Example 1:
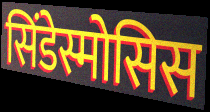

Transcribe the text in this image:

सिंडेस्मोसिस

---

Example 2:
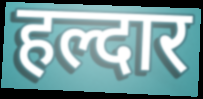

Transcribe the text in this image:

हल्दार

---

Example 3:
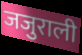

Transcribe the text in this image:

जजुराली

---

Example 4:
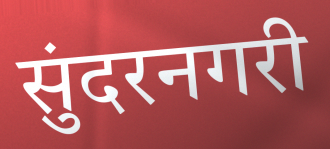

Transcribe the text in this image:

सुंदरनगरी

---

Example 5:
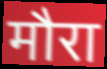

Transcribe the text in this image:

मौरा